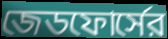
জেডফোর্সের